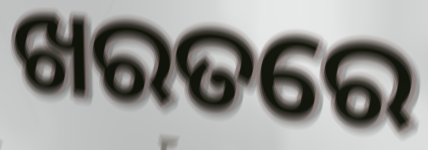
ଖରତରେ